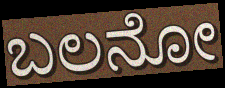
ಬಲನೋ